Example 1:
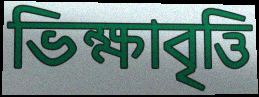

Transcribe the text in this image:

ভিক্ষাবৃত্তি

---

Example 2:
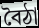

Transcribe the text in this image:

বৈঠা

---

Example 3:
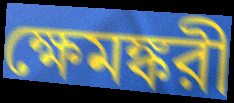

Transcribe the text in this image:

ক্ষেমঙ্করী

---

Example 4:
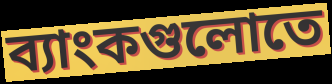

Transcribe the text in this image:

ব্যাংকগুলোতে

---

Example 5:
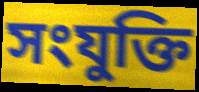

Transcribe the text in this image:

সংযুক্তি